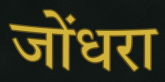
जोंधरा